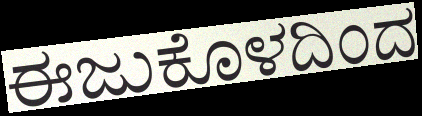
ಈಜುಕೊಳದಿಂದ